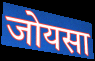
जोयसा